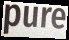
pure